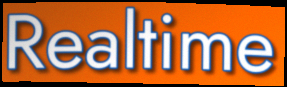
Realtime